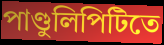
পাণ্ডুলিপিটিতে